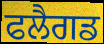
ਫਲੈਗਡ